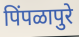
पिंपळापुरे